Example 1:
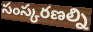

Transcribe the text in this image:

సంస్కరణల్ని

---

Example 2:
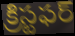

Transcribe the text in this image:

క్రిస్టఫర్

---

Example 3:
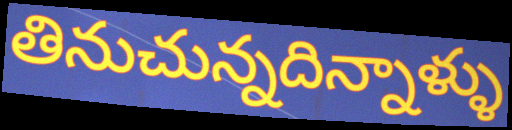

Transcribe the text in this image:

తినుచున్నదిన్నాళ్ళు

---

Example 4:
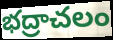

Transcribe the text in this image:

భద్రాచలం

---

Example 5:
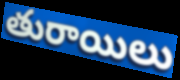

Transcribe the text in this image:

తురాయిలు